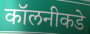
कॉलनीकडे